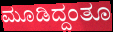
ಮೂಡಿದ್ದಂತೂ